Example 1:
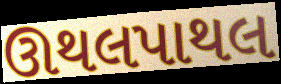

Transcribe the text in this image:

ઊથલપાથલ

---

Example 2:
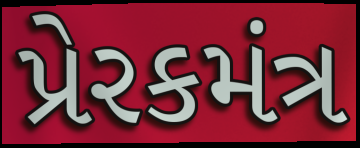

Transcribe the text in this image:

પ્રેરકમંત્ર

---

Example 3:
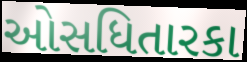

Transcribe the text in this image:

ઓસધિતારકા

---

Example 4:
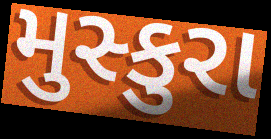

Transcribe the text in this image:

મુસ્કુરા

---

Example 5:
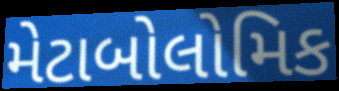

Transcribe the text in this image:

મેટાબોલોમિક